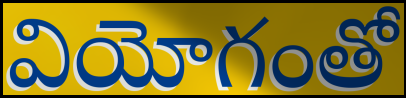
వియోగంతో